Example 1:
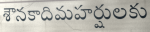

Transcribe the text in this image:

శౌనకాదిమహర్షులకు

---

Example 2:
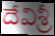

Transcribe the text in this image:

దేవిశ్రీ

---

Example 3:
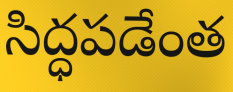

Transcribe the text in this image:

సిద్ధపడేంత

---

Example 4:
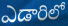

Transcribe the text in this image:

ఎడారిలో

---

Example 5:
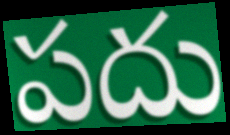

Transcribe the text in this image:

పదు